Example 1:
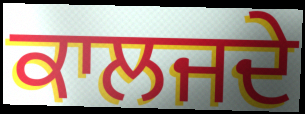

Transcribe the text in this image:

ਕਾਲਜਦੇ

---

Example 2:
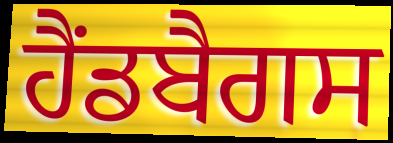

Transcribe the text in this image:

ਹੈਂਡਬੈਗਸ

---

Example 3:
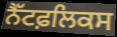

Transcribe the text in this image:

ਨੈੱਟਫ਼ਲਿਕਸ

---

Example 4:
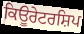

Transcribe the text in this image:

ਕਿਊਰੇਟਰਸ਼ਿਪ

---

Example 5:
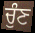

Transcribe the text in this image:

ਚੁੰਣ